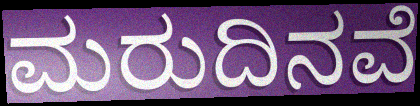
ಮರುದಿನವೆ